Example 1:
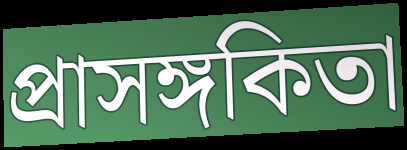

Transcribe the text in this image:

প্রাসঙ্গকিতা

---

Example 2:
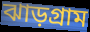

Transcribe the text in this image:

ঝাড়গ্রাম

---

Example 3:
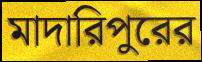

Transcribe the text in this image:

মাদারিপুরের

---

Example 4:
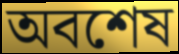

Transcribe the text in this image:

অবশেষ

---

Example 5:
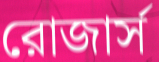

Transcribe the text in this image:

রোজার্স